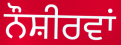
ਨੌਸ਼ੀਰਵਾਂ